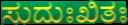
ಸುದುಃಖಿತಃ